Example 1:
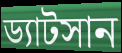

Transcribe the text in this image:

ড্যাটসান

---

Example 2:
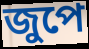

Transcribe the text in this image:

জুপে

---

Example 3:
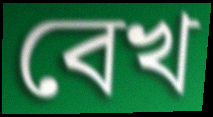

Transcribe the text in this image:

বেখ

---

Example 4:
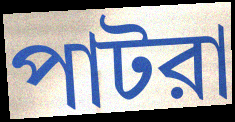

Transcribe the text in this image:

পাটরা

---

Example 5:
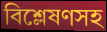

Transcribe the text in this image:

বিশ্লেষণসহ